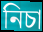
নিচা